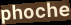
phoche